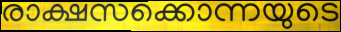
രാക്ഷസക്കൊന്നയുടെ